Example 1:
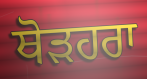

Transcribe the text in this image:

ਥੋੜਹਰਾ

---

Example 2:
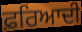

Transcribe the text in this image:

ਫ਼ਰਿਆਦੀ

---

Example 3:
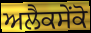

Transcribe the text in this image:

ਅਲੈਕਸੇਂਕੋ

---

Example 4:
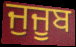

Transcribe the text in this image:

ਜੁਜੂਬ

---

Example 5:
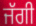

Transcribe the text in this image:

ਜੱਗੀ